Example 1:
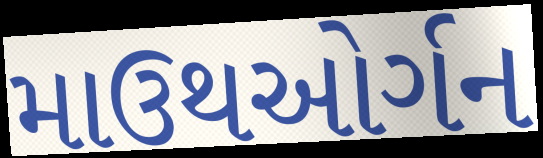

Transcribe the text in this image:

માઉથઓર્ગન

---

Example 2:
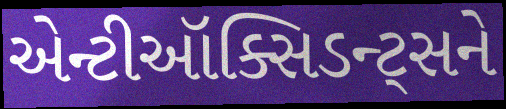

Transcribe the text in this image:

એન્ટીઑક્સિડન્ટ્સને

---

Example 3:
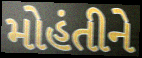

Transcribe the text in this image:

મોહંતીને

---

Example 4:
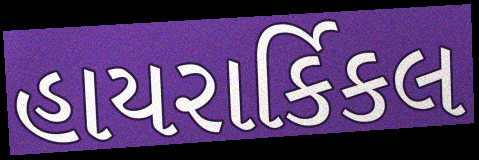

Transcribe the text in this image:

હાયરાર્કિકલ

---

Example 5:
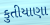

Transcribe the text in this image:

કુતીયાણા